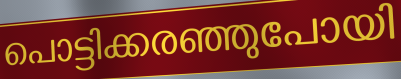
പൊട്ടിക്കരഞ്ഞുപോയി